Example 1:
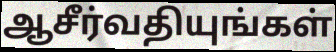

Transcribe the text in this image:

ஆசீர்வதியுங்கள்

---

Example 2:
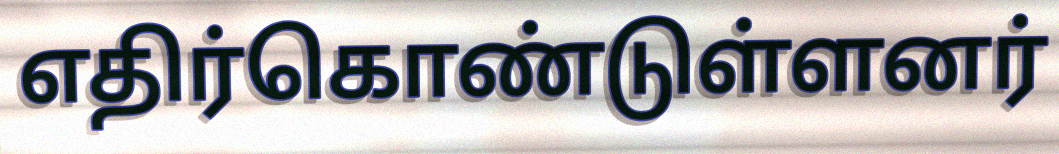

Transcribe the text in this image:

எதிர்கொண்டுள்ளனர்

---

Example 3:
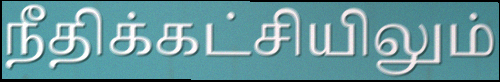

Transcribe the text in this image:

நீதிக்கட்சியிலும்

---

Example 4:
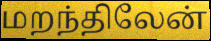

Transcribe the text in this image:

மறந்திலேன்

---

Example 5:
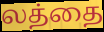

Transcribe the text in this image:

லத்தை